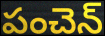
పంచెన్